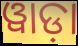
ୱାଡ଼ା